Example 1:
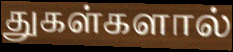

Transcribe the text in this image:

துகள்களால்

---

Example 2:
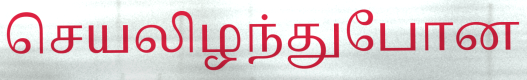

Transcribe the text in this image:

செயலிழந்துபோன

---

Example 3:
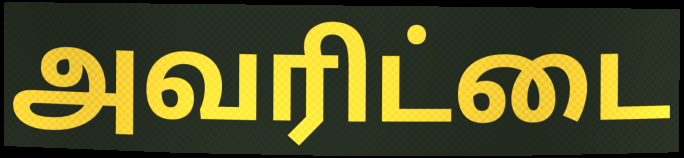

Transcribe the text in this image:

அவரிட்டை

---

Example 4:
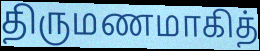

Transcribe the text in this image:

திருமணமாகித்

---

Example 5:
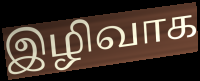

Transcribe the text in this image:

இழிவாக